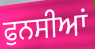
ਫੁਨਸੀਆਂ